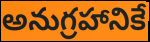
అనుగ్రహానికే